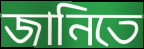
জানিতে